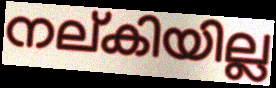
നല്കിയില്ല